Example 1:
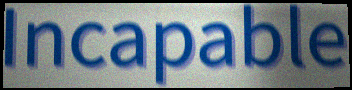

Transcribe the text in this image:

Incapable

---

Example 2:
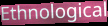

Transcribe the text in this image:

Ethnological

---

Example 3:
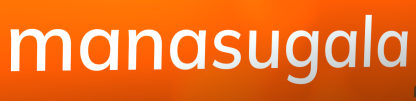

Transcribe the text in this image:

manasugala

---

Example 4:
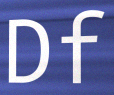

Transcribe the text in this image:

Df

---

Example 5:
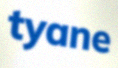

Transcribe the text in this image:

tyane